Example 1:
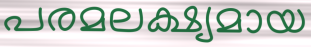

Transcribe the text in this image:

പരമലക്ഷ്യമായ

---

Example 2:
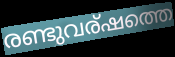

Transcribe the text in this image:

രണ്ടുവര്ഷത്തെ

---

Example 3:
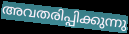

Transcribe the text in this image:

അവതരിപ്പിക്കുന്നു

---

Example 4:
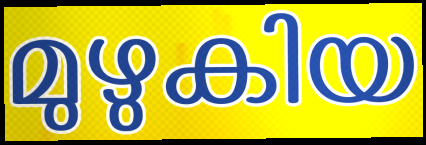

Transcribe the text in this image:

മുഴുകിയ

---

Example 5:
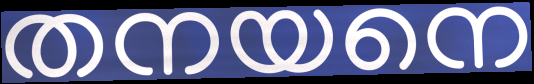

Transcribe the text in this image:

തനയനെ